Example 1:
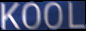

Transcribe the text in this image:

KOOL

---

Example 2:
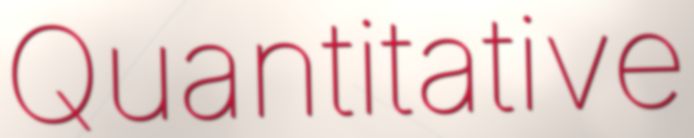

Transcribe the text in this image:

Quantitative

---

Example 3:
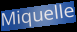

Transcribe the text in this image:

Miquelle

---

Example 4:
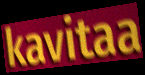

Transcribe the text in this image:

kavitaa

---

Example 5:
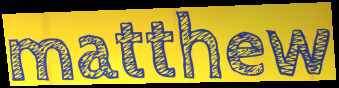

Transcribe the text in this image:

matthew